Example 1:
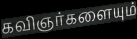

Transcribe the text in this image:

கவிஞர்களையும்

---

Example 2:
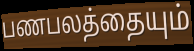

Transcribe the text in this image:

பணபலத்தையும்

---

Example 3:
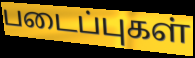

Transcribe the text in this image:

படைப்புகள்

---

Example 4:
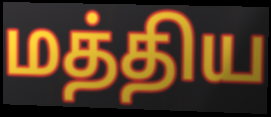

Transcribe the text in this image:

மத்திய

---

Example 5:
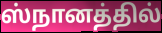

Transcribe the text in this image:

ஸ்நானத்தில்